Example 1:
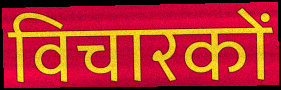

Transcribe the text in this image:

विचारकों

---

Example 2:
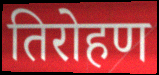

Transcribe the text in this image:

तिरोहण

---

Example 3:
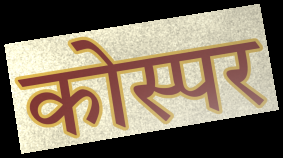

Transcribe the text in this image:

कोस्पर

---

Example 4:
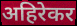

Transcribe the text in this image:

अहिरेकर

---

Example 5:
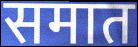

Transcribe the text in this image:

समात